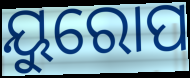
ୟୁରୋପ